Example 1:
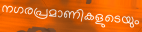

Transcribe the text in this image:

നഗരപ്രമാണികളുടെയും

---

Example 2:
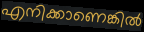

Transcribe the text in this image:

എനിക്കാണെങ്കിൽ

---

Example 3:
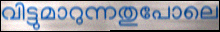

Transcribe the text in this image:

വിട്ടുമാറുന്നതുപോലെ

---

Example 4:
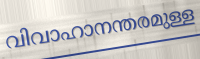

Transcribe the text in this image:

വിവാഹാനന്തരമുള്ള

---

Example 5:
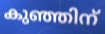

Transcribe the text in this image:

കുഞ്ഞിന്